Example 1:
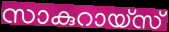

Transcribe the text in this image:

സാകുറായ്സ്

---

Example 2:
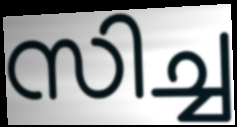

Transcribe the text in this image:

സിച്ച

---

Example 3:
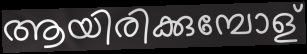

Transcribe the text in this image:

ആയിരിക്കുമ്പോള്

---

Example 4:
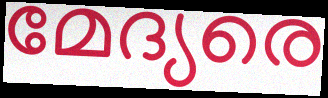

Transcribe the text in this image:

മേദ്യരെ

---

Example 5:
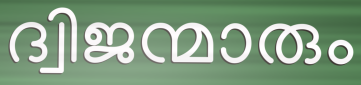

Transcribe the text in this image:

ദ്വിജന്മാരും